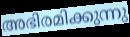
അഭിരമിക്കുന്നു